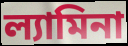
ল্যামিনা